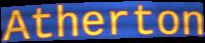
Atherton